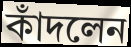
কাঁদলেন